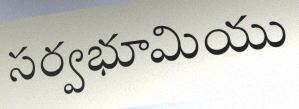
సర్వభూమియు